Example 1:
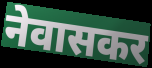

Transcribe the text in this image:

नेवासकर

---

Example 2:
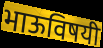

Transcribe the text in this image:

भाऊविषयी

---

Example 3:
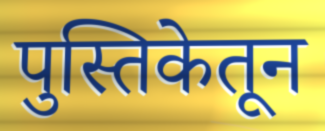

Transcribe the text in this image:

पुस्तिकेतून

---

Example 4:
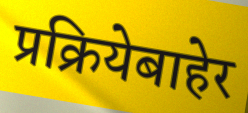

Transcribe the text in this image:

प्रक्रियेबाहेर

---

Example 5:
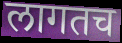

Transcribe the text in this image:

लागतच